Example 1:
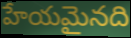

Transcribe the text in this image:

హేయమైనది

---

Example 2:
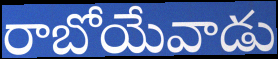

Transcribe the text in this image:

రాబోయేవాడు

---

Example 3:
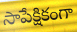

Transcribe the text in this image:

సాపేక్షికంగా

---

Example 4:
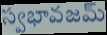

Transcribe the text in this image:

స్వభావజమ్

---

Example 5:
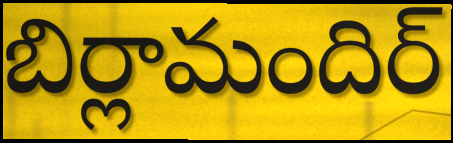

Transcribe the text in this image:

బిర్లామందిర్